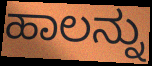
ಹಾಲನ್ನು